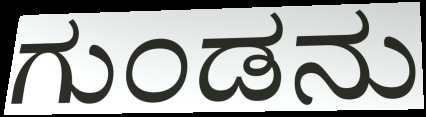
ಗುಂಡನು